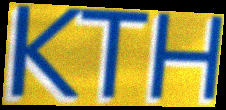
KTH